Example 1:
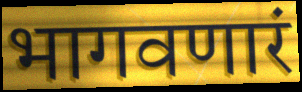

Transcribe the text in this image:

भागवणारं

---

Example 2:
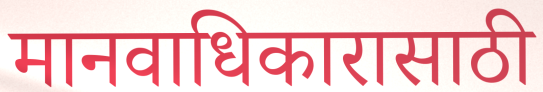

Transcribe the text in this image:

मानवाधिकारासाठी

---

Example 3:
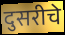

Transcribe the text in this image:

दुसरीचे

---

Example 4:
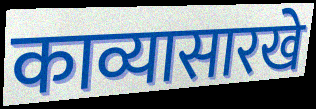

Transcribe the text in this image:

काव्यासारखे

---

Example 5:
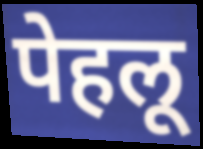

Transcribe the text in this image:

पेहलू